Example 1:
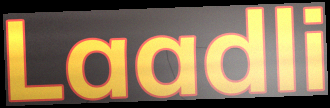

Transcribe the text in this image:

Laadli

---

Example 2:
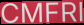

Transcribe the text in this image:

CMFRI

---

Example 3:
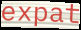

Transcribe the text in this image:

expat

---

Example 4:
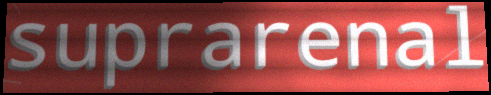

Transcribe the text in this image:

suprarenal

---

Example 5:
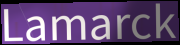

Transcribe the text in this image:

Lamarck